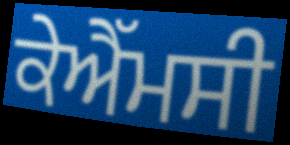
ਕੇਐੱਮਸੀ